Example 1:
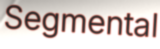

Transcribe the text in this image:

Segmental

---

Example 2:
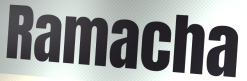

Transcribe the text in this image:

Ramacha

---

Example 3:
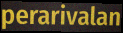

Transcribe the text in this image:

perarivalan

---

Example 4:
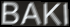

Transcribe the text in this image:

BAKI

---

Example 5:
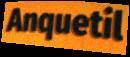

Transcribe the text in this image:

Anquetil